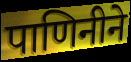
पाणिनीने